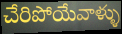
చేరిపోయేవాళ్ళు